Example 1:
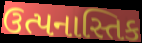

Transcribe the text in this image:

ઉત્પનાસ્તિક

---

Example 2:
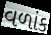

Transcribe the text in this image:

વળાંક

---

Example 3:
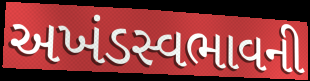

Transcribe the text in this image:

અખંડસ્વભાવની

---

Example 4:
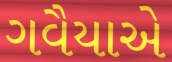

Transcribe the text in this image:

ગવૈયાએ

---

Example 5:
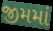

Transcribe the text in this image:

જીમમાં